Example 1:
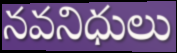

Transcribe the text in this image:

నవనిధులు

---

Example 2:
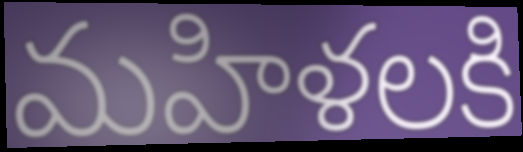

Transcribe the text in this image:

మహిళలకి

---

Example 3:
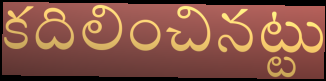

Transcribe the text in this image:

కదిలించినట్టు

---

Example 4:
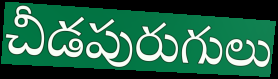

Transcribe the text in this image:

చీడపురుగులు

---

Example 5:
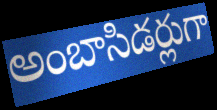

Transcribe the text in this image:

అంబాసిడర్లుగా